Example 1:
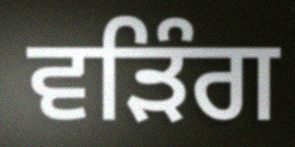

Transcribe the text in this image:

ਵੜਿੰਗ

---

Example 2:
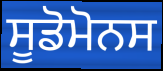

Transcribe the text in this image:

ਸੂਡੋਮੋਨਸ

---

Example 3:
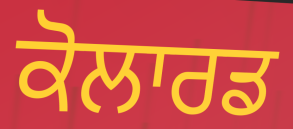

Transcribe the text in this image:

ਕੋਲਾਰਡ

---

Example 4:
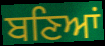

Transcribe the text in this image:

ਬਣਿਆਂ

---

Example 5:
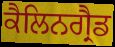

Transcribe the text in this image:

ਕੈਲਿਨਗ੍ਰੈਡ